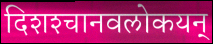
दिशश्चानवलोकयन्